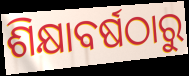
ଶିକ୍ଷାବର୍ଷଠାରୁ